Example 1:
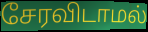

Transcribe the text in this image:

சேரவிடாமல்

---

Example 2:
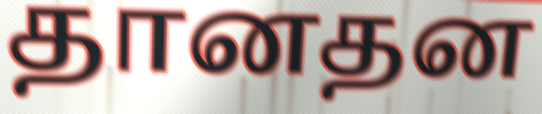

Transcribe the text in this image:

தானதன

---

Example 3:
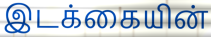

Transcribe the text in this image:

இடக்கையின்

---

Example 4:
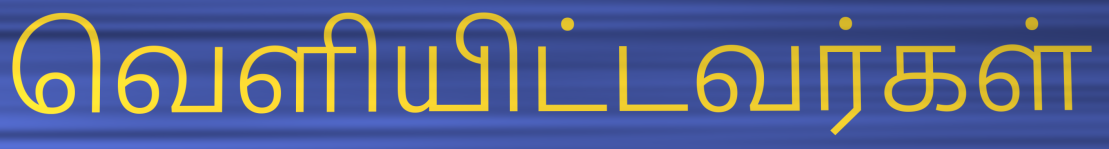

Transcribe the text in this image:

வெளியிட்டவர்கள்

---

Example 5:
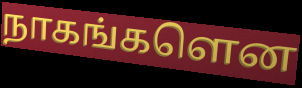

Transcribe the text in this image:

நாகங்களென